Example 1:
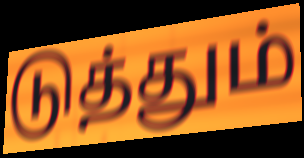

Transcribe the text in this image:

டுத்தும்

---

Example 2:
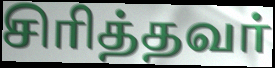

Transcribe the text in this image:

சிரித்தவர்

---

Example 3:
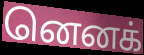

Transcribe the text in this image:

னெனக்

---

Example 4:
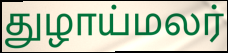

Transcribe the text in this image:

துழாய்மலர்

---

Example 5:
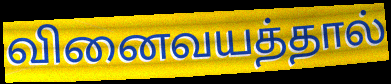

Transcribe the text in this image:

வினைவயத்தால்